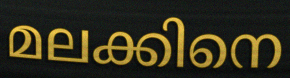
മലക്കിനെ